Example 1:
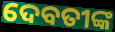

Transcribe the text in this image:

ଦେବତୀଙ୍କ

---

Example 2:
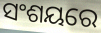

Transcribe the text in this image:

ସଂଶୟରେ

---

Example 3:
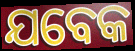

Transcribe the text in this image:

ଯବେକ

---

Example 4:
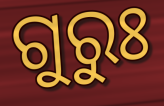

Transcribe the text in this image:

ଗୁରୁଃ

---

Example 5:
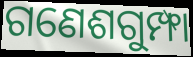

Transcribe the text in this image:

ଗଣେଶଗୁମ୍ଫା